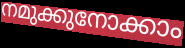
നമുക്കുനോക്കാം